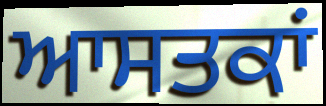
ਆਸਤਕਾਂ